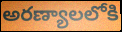
అరణ్యాలలోకి